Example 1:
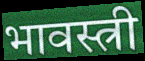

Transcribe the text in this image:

भावस्त्री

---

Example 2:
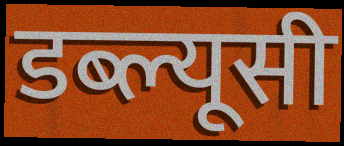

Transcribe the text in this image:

डब्ल्यूसी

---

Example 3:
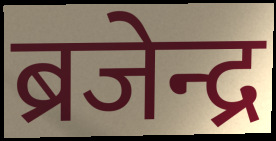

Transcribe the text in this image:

ब्रजेन्द्र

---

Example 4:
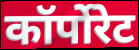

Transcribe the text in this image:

कॉर्पोरेट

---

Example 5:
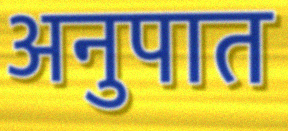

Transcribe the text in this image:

अनुपात